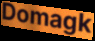
Domagk